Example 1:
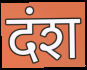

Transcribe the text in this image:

दंश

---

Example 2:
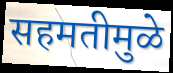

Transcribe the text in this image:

सहमतीमुळे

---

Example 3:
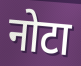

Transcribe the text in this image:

नोटा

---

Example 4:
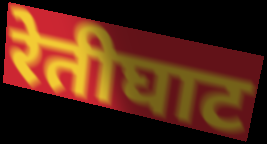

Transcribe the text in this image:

रेतीघाट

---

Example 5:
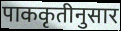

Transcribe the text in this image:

पाककृतीनुसार